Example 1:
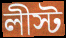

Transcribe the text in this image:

লীস্ট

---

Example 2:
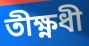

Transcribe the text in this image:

তীক্ষ্ণধী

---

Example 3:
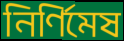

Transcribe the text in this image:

নির্ণিমেষ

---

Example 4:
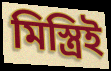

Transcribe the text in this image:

মিস্ত্রিই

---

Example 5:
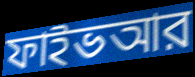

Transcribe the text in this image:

ফাইভআর